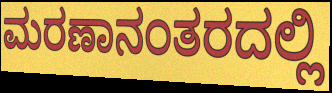
ಮರಣಾನಂತರದಲ್ಲಿ